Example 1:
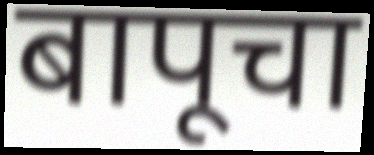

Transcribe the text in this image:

बापूचा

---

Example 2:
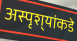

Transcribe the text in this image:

अस्पृश्यांकडे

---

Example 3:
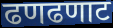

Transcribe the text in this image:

ढणढणाट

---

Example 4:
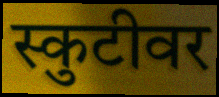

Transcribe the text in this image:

स्कुटीवर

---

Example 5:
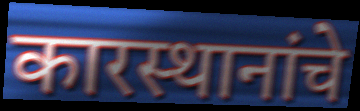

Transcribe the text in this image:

कारस्थानांचे